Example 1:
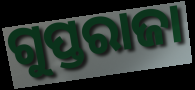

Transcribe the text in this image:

ଗୁପ୍ତରାଜା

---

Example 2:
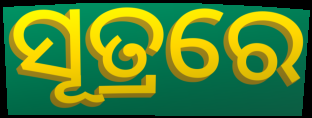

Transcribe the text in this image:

ସୂତ୍ରରେ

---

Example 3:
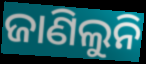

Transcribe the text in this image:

ଜାଣିଲୁନି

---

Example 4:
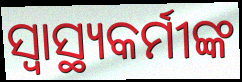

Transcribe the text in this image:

ସ୍ବାସ୍ଥ୍ୟକର୍ମୀଙ୍କ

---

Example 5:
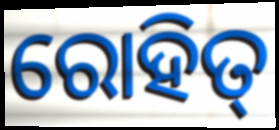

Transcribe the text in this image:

ରୋହିତ୍